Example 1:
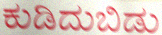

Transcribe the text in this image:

ಕುಡಿದುಬಿಡು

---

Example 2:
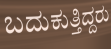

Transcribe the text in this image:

ಬದುಕುತ್ತಿದ್ದರು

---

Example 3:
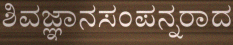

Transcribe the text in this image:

ಶಿವಜ್ಞಾನಸಂಪನ್ನರಾದ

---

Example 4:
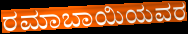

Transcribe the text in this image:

ರಮಾಬಾಯಿಯವರ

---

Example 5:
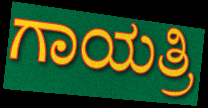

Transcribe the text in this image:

ಗಾಯತ್ರಿ